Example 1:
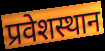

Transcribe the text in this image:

प्रवेशस्थान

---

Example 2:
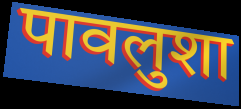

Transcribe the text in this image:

पावलुशा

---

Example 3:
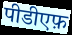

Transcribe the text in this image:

पीडीएफ़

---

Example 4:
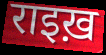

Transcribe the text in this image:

राइख़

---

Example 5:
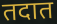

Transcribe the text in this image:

तदात